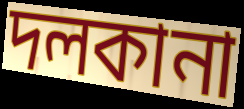
দলকানা